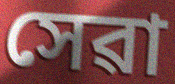
সেৱা